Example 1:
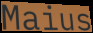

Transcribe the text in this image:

Maius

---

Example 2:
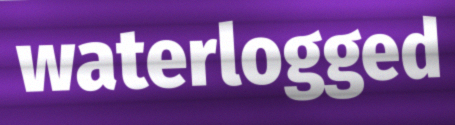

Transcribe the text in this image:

waterlogged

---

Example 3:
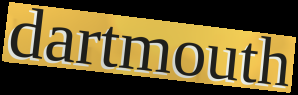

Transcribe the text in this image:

dartmouth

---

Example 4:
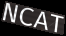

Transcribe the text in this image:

NCAT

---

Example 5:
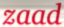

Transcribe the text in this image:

zaad